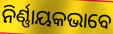
ନିର୍ଣ୍ଣାୟକଭାବେ